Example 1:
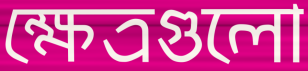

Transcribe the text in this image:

ক্ষেত্রগুলো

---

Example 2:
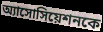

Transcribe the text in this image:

অ্যাসোসিয়েশনকে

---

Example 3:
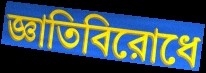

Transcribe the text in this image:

জ্ঞাতিবিরোধে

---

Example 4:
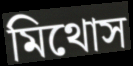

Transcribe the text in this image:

মিথোস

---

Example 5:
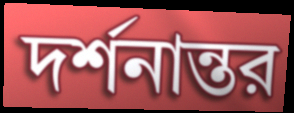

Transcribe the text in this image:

দর্শনান্তর